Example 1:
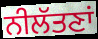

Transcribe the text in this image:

ਨੀਲੱਤਣਾਂ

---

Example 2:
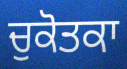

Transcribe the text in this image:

ਚੁਕੋਤਕਾ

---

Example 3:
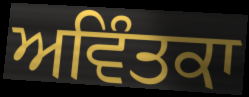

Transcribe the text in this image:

ਅਵਿੰਤਕਾ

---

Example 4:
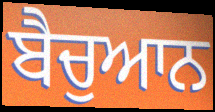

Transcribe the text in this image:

ਬੈਚੁਆਨ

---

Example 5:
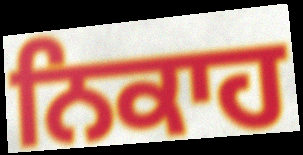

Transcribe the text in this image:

ਨਿਕਾਹ